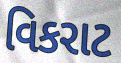
વિકરાટ